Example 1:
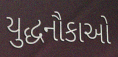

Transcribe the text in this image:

યુદ્ધનૌકાઓ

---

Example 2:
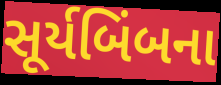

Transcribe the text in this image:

સૂર્યબિંબના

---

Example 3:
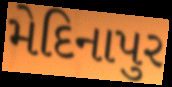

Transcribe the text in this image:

મેદિનાપુર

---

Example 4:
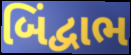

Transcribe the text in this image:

બિંદ્વાભ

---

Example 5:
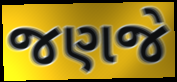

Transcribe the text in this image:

જણજે